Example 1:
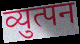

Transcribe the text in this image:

व्युत्पन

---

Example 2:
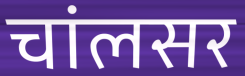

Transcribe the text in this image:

चांलसर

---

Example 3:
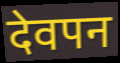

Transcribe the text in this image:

देवपन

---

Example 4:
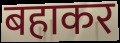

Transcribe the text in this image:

बहाकर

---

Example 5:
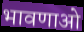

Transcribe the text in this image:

भावणाओ